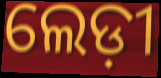
ଲେଡ଼ୀ